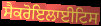
ਸੈਕਰੋਇਲਾਈਟਿਸ